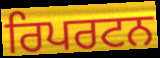
ਰਿਪਰਟਨ